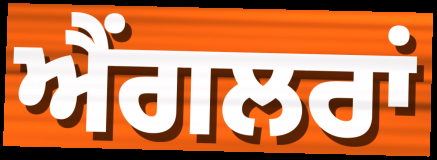
ਐਂਗਲਰਾਂ